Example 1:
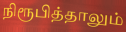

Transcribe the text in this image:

நிரூபித்தாலும்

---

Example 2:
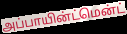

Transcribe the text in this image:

அப்பாயின்ட்மென்ட்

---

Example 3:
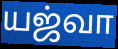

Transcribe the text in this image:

யஜ்வா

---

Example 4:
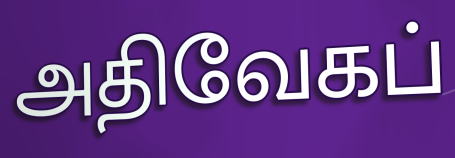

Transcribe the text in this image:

அதிவேகப்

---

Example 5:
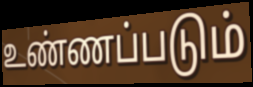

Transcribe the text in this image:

உண்ணப்படும்